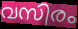
വസിരം